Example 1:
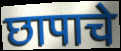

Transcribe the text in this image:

छापाचे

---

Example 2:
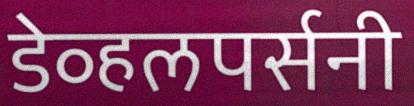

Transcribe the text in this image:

डेव्हलपर्सनी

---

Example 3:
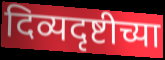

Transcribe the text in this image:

दिव्यदृष्टीच्या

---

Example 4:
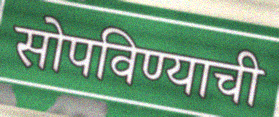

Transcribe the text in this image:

सोपविण्याची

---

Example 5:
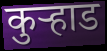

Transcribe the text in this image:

कुऱ्हाड